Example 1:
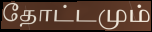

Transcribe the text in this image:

தோட்டமும்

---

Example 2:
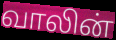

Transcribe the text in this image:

வாலின்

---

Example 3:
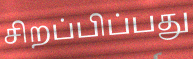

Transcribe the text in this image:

சிறப்பிப்பது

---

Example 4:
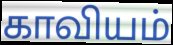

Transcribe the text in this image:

காவியம்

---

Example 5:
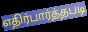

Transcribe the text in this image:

எதிர்பார்த்தபடி